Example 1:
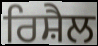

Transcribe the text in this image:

ਰਿਸ਼ੈਲ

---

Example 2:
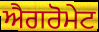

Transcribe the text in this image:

ਐਗਰੋਮੇਟ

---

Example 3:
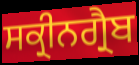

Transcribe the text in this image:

ਸਕ੍ਰੀਨਗ੍ਰੈਬ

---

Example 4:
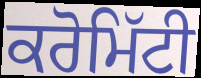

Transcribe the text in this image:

ਕਰੋਮਿੱਟੀ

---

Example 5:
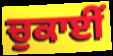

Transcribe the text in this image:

ਚੁਕਾਈਂ